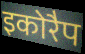
इकोरैप